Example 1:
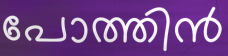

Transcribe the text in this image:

പോത്തിൻ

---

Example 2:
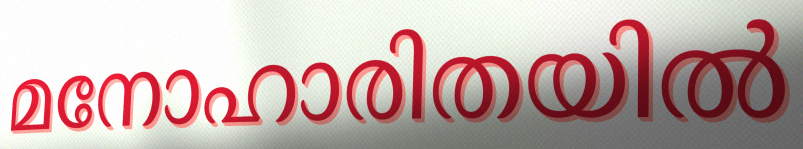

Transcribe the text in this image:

മനോഹാരിതയിൽ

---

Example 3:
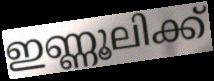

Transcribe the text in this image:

ഇണ്ണൂലിക്ക്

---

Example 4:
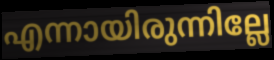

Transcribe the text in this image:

എന്നായിരുന്നില്ലേ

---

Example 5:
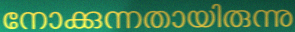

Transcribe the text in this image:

നോക്കുന്നതായിരുന്നു